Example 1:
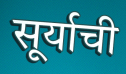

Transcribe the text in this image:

सूर्याची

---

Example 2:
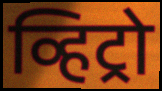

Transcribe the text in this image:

व्हिट्रो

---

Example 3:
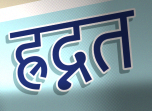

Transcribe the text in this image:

ह्रद्नत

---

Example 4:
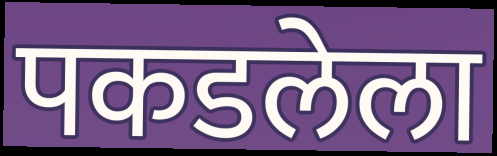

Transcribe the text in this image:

पकडलेला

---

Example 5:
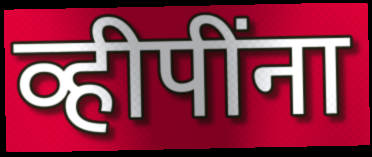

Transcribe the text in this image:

व्हीपींना